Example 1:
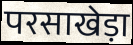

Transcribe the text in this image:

परसाखेड़ा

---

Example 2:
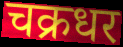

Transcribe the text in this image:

चक्रधर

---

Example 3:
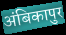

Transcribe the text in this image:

अंबिकापुर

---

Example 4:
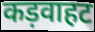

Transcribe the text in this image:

कड़वाहट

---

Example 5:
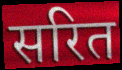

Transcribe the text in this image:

सरित